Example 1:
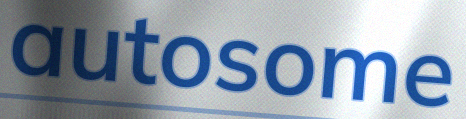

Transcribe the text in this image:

autosome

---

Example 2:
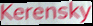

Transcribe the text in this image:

Kerensky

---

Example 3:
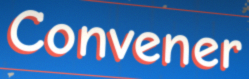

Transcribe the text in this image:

Convener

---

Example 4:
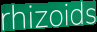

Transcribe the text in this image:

rhizoids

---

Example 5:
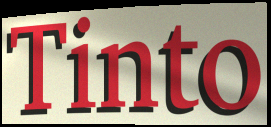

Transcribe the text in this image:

Tinto